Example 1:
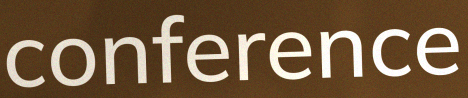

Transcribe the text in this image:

conference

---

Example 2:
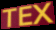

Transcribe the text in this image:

TEX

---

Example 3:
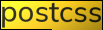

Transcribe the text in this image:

postcss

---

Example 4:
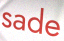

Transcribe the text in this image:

sade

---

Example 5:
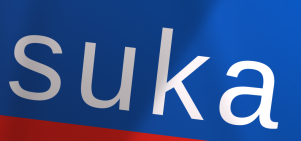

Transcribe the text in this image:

suka